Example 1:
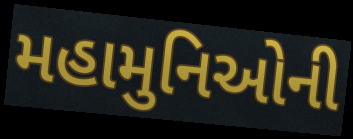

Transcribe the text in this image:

મહામુનિઓની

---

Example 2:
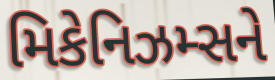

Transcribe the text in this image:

મિકેનિઝમ્સને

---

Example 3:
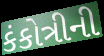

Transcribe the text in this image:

કંકોત્રીની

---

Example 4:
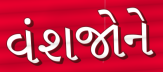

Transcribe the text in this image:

વંશજોને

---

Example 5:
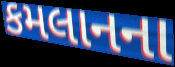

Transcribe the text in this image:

કમલાનના